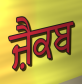
ਜ਼ੈਕਬ